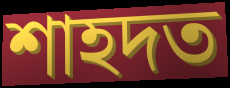
শাহদত